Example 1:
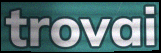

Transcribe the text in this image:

trovai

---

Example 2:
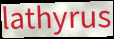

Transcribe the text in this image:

lathyrus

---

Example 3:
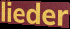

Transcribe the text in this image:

lieder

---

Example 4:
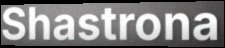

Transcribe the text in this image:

Shastrona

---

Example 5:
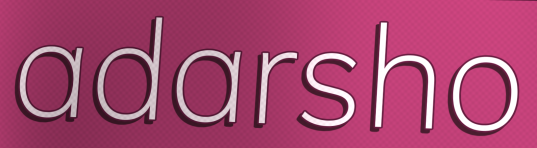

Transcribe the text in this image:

adarsho